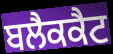
ਬਲੈਕਕੈਟ